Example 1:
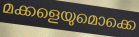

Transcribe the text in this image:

മക്കളെയുമൊക്കെ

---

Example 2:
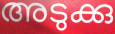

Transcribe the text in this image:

അടുക്കു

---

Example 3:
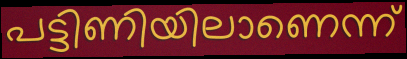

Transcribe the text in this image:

പട്ടിണിയിലാണെന്ന്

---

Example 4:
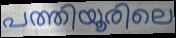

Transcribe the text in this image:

പത്തിയൂരിലെ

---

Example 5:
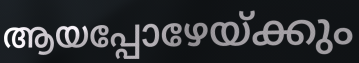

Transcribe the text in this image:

ആയപ്പോഴേയ്ക്കും